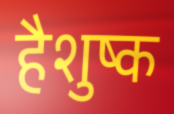
हैशुष्क